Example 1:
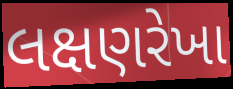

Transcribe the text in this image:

લક્ષણરેખા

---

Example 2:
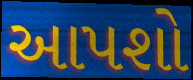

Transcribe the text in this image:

આપશો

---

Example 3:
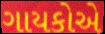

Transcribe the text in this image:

ગાયકોએ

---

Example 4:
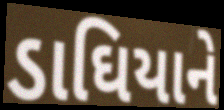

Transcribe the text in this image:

ડાઘિયાને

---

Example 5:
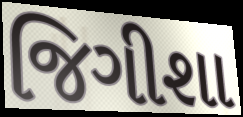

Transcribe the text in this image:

જિગીશા